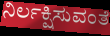
ನಿರ್ಲಕ್ಷಿಸುವಂತೆ